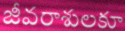
జీవరాశులకూ